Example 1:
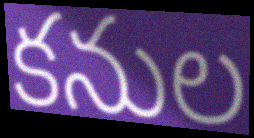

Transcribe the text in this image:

కనుల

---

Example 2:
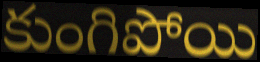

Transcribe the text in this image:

కుంగిపోయి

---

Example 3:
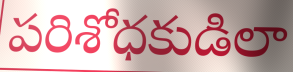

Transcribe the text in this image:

పరిశోధకుడిలా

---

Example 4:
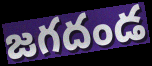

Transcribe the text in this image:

జగదండ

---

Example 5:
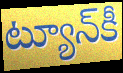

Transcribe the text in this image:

ట్యూన్‌కీ